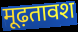
मूढ़तावश